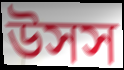
উসস